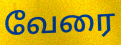
வேரை